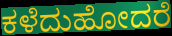
ಕಳೆದುಹೋದರೆ